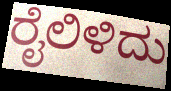
ರೈಲಿಳಿದು